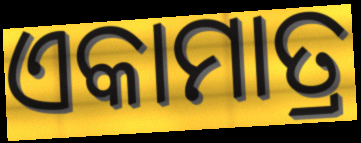
ଏକାମାତ୍ର